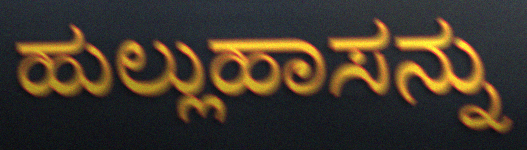
ಹುಲ್ಲುಹಾಸನ್ನು